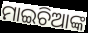
ମାଇଚିଆଙ୍କ